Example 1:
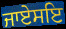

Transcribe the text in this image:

ਜਾਏਸਇ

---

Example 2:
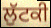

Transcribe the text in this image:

ਲੁੱਟਕੀ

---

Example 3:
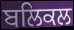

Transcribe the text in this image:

ਬਲਿਕਲ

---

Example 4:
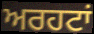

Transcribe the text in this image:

ਅਰਹਟਾਂ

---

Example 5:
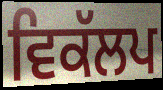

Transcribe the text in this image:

ਵਿਕੱਲਪ